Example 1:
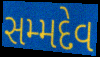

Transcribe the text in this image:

સમ્મદેવ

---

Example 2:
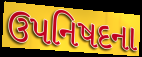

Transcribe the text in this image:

ઉપનિષદના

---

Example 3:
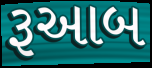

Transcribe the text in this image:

રૂઆબ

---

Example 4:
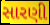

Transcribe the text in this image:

સારણી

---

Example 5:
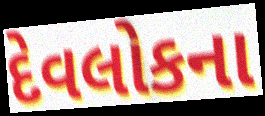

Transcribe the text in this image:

દેવલોકના